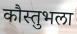
कौस्तुभला